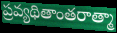
ప్రవ్యథితాంతరాత్మా